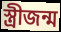
স্ত্রীজন্ম